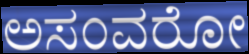
ಅಸಂವರೋ